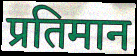
प्रतिमान